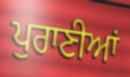
ਪੁਰਾਣੀਆਂ